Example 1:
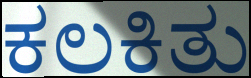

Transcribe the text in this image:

ಕಲಕಿತು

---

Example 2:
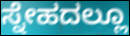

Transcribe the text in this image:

ಸ್ನೇಹದಲ್ಲೂ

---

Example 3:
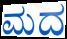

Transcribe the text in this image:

ಮದ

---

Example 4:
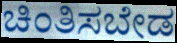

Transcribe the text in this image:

ಚಿಂತಿಸಬೇಡ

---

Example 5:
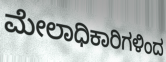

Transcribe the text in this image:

ಮೇಲಾಧಿಕಾರಿಗಳಿಂದ